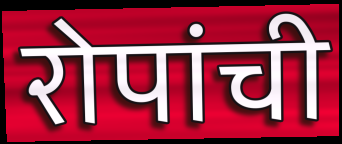
रोपांची